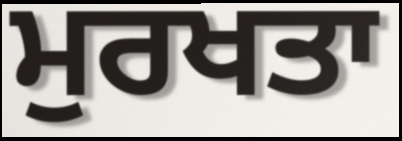
ਮੁਰਖਤਾ